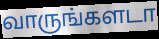
வாருங்களடா